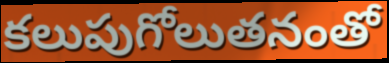
కలుపుగోలుతనంతో